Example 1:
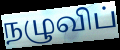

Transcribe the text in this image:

நழுவிப்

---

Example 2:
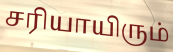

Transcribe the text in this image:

சரியாயிரும்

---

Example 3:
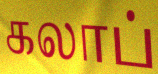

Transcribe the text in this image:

கலாப்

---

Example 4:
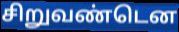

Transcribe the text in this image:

சிறுவண்டென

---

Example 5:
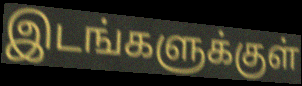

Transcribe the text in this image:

இடங்களுக்குள்